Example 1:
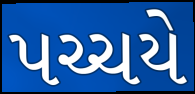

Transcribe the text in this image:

પચ્ચયે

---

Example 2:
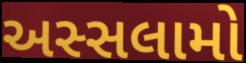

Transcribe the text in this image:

અસ્સલામો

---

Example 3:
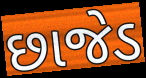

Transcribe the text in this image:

છાજેડ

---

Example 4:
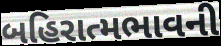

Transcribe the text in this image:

બહિરાત્મભાવની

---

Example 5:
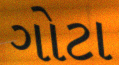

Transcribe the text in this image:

ગોટા